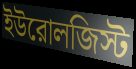
ইউরোলজিস্ট